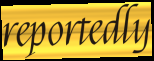
reportedly